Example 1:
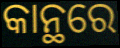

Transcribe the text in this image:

କାନ୍ଥରେ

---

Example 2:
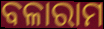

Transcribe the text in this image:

ବଳାରାମ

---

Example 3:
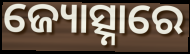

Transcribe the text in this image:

ଜ୍ୟୋତ୍ସ୍ନାରେ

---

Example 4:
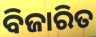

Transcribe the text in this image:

ବିଜାରିତ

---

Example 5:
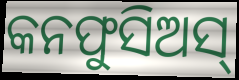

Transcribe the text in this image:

କନଫୁସିଅସ୍